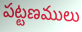
పట్టణములు